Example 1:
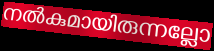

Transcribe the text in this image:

നൽകുമായിരുന്നല്ലോ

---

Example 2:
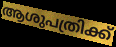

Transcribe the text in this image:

ആശുപത്രിക്ക്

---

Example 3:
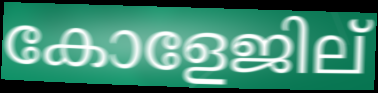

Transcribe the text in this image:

കോളേജില്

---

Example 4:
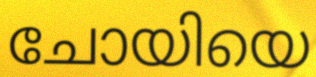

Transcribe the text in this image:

ചോയിയെ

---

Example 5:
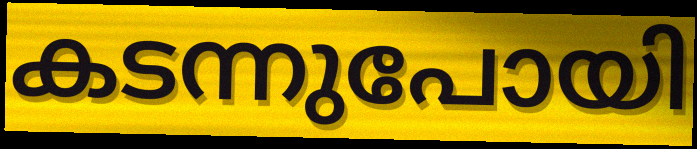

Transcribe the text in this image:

കടന്നുപോയി